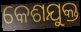
କେଶଯୁକ୍ତ